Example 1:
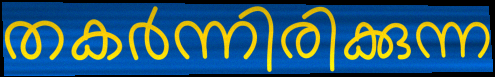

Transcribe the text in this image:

തകർന്നിരിക്കുന്ന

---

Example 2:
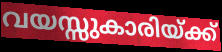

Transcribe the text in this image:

വയസ്സുകാരിയ്ക്ക്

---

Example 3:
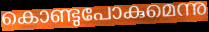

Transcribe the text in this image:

കൊണ്ടുപോകുമെന്നു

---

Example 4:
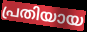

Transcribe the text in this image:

പ്രതിയായ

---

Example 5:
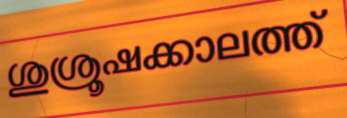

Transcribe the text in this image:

ശുശ്രൂഷക്കാലത്ത്